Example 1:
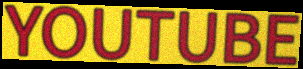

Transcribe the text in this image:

YOUTUBE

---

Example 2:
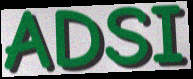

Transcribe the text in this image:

ADSI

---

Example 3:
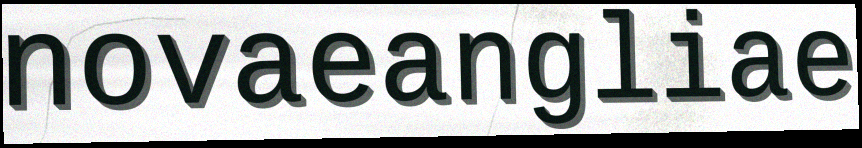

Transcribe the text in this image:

novaeangliae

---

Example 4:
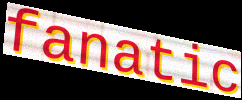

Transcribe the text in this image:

fanatic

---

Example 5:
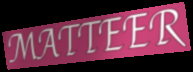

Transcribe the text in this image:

MATTEER